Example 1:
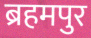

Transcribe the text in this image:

ब्रहमपुर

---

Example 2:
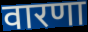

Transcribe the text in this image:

वारणा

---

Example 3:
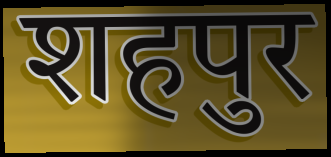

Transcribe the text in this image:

शहपुर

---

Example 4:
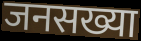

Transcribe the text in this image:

जनसख्या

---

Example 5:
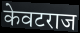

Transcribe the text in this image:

केवटराज